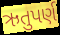
ઋતુપર્ણ